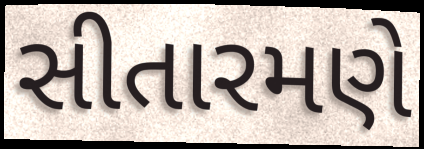
સીતારમણે